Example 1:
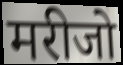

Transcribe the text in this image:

मरीजो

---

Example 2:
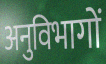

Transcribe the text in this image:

अनुविभागों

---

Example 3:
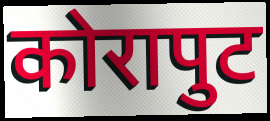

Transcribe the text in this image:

कोरापुट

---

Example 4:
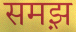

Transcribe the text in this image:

समझ़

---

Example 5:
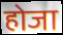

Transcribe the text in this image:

होजा